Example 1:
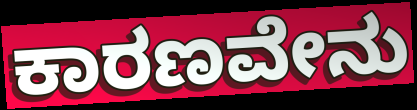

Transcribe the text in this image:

ಕಾರಣವೇನು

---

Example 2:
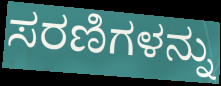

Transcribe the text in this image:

ಸರಣಿಗಳನ್ನು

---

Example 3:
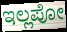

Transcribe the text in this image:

ಇಲ್ಲಪೋ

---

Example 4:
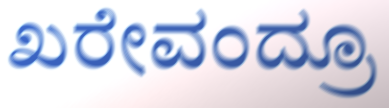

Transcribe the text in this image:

ಖರೇವಂದ್ರೂ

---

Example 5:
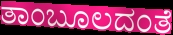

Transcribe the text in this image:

ತಾಂಬೂಲದಂತೆ